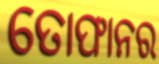
ତୋଫାନର